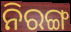
ନିରଙ୍ଗ